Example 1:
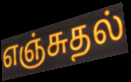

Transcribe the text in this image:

எஞ்சுதல்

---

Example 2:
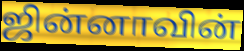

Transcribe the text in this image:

ஜின்னாவின்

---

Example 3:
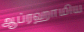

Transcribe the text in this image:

ஆப்ரஹாமிய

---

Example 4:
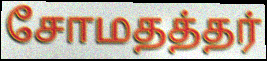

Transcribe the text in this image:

சோமதத்தர்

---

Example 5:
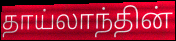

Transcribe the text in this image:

தாய்லாந்தின்